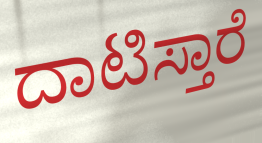
ದಾಟಿಸ್ತಾರೆ